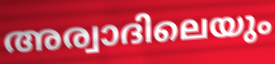
അര്വാദിലെയും